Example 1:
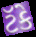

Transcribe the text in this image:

ટૅંકે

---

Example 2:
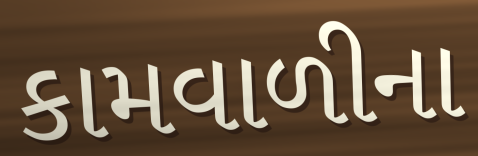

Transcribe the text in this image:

કામવાળીના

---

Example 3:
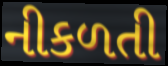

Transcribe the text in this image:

નીકળતી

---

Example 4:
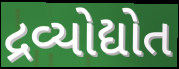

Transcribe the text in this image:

દ્રવ્યોદ્યોત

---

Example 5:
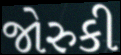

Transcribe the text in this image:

જોરુકી